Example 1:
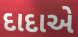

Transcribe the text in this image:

દાદાએ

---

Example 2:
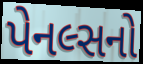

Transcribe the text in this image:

પેનલ્સનો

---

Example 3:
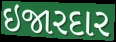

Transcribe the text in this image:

ઇજારદાર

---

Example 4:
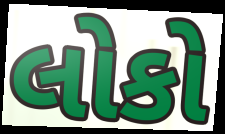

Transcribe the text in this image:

લોકો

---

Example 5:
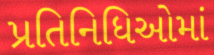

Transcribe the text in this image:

પ્રતિનિધિઓમાં